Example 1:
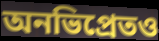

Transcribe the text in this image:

অনভিপ্রেতও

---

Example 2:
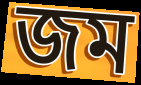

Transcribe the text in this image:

জম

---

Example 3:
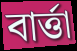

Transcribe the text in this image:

বার্ত্তা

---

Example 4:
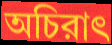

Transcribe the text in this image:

অচিরাৎ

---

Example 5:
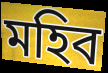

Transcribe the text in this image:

মহিব